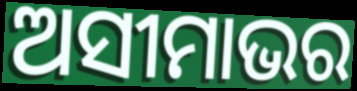
ଅସୀମାଭର